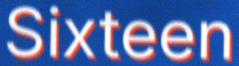
Sixteen